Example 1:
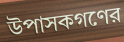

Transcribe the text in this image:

উপাসকগণের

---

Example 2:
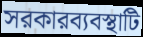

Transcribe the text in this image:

সরকারব্যবস্থাটি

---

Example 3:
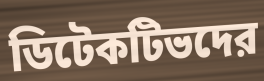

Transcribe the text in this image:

ডিটেকটিভদের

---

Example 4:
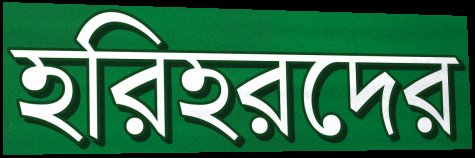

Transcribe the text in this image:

হরিহরদের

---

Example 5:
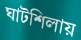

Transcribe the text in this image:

ঘাটশিলায়